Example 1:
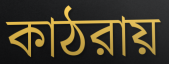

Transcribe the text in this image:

কাঠরায়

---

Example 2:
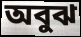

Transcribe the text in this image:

অবুঝ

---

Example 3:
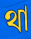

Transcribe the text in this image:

থা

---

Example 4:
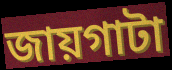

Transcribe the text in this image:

জায়গাটা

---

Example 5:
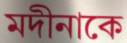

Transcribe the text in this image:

মদীনাকে